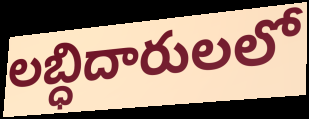
లబ్ధిదారులలో